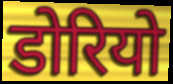
डोरियो